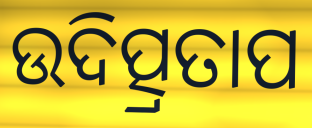
ଉଦିତ୍ପ୍ରତାପ